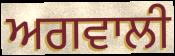
ਅਗਵਾਲੀ